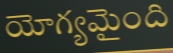
యోగ్యమైంది